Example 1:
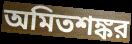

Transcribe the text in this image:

অমিতশঙ্কর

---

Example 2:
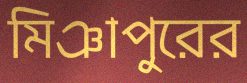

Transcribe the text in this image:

মিঞাপুরের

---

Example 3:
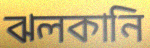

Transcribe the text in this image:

ঝলকানি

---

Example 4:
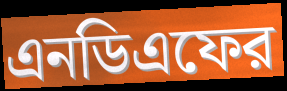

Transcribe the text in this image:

এনডিএফের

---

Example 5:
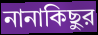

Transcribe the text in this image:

নানাকিছুর